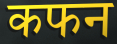
कफन